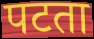
पटता